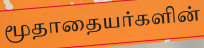
மூதாதையர்களின்